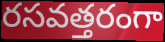
రసవత్తరంగా